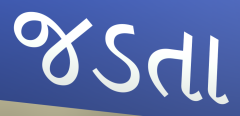
જડતા